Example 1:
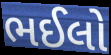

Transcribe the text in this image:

ભઈલો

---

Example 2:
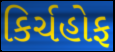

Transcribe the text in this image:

કિર્ચહોફ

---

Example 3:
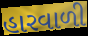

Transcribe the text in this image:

હારવાળી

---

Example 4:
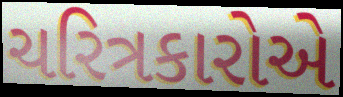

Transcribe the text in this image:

ચરિત્રકારોએ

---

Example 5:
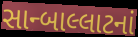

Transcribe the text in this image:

સાન્બાલ્લાટનાં